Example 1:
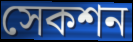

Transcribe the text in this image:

সেকশন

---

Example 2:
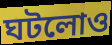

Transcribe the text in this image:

ঘটলোও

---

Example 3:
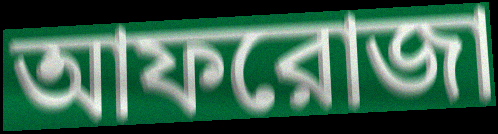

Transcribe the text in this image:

আফরোজা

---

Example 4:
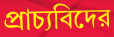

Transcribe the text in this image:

প্রাচ্যবিদের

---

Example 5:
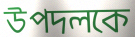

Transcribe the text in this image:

উপদলকে